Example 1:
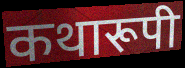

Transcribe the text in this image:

कथारूपी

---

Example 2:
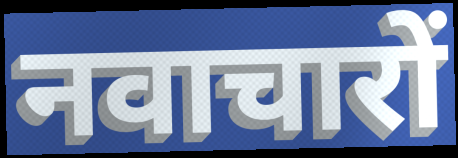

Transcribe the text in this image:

नवाचारों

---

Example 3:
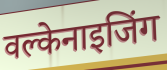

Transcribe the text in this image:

वल्केनाइजिंग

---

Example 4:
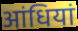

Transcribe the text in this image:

आंधियां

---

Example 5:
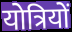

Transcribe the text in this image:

योत्रियों